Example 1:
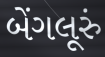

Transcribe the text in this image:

બેંગલૂરું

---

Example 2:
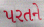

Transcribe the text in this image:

પરતને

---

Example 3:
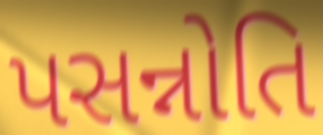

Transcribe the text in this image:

પસન્નોતિ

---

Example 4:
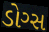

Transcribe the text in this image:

ડોગ્સ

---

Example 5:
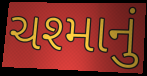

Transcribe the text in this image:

ચશ્માનું